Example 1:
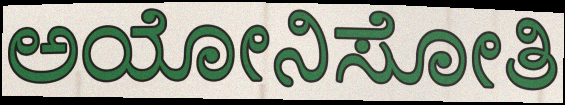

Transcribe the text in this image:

ಅಯೋನಿಸೋತಿ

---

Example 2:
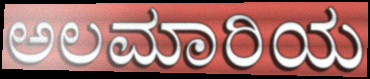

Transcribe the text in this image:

ಅಲಮಾರಿಯ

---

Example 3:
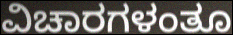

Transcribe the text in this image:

ವಿಚಾರಗಳಂತೂ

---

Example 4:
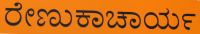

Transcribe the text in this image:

ರೇಣುಕಾಚಾರ್ಯ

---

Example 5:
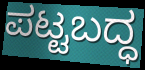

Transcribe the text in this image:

ಪಟ್ಟಬದ್ಧ